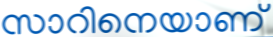
സാറിനെയാണ്